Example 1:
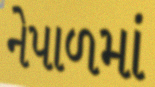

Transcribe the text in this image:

નેપાળમાં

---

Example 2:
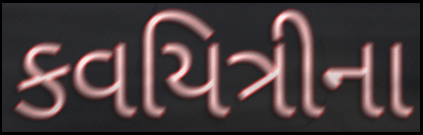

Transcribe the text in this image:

કવયિત્રીના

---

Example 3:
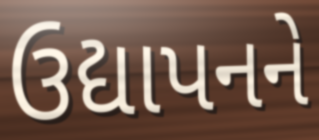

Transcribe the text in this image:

ઉદ્યાપનને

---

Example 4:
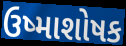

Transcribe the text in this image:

ઉષ્માશોષક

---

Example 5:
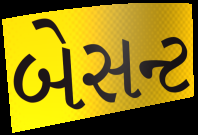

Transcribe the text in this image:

બેસન્ટ